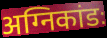
अग्निकांडः